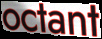
octant